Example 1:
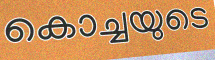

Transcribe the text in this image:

കൊച്ചയുടെ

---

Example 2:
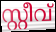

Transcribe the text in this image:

സ്റ്റീവ്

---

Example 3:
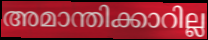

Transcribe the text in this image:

അമാന്തിക്കാറില്ല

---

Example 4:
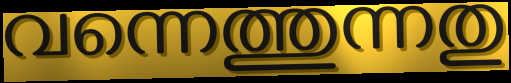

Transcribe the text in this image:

വന്നെത്തുന്നതു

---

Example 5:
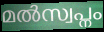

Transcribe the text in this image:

മൽസ്വപ്നം